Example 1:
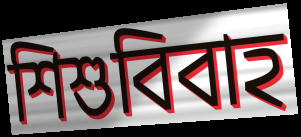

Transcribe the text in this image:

শিশুবিবাহ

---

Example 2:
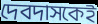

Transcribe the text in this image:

দেবদাসকেই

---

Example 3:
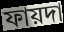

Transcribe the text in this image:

ফায়দা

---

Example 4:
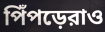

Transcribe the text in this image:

পিঁপড়েরাও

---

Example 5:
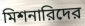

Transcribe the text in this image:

মিশনারিদের